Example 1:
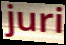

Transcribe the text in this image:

juri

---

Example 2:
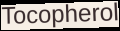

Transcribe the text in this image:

Tocopherol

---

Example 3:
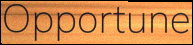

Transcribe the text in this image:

Opportune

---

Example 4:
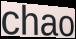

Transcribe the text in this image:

chao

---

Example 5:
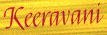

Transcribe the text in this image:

Keeravani